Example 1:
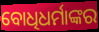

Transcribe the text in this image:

ବୋଧିଧର୍ମାଙ୍କର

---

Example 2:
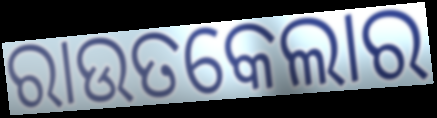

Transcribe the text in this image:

ରାଉତକେଲାର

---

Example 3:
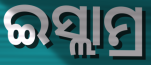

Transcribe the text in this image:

ଇସ୍ଲାମ୍ର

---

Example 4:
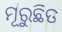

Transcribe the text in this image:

ମୂରୁଛିତ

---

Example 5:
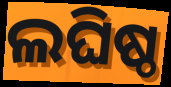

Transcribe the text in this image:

ଲଘିଷ୍ଠ